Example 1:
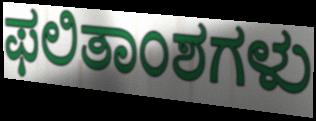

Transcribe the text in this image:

ಫಲಿತಾಂಶಗಳು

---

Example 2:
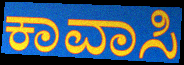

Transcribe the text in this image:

ಕಾವಾಸಿ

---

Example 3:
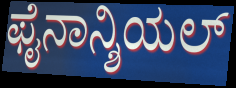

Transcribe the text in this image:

ಫೈನಾನ್ಶಿಯಲ್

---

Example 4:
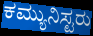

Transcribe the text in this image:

ಕಮ್ಯುನಿಸ್ಟರು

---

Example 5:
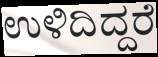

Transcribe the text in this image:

ಉಳಿದಿದ್ದರೆ